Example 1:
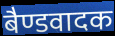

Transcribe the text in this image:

बैण्डवादक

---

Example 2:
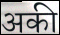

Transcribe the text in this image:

अकी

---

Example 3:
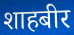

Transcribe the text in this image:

शाहबीर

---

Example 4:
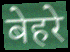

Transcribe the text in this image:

बेहरे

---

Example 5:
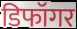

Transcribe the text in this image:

डिफॉगर